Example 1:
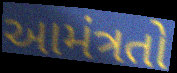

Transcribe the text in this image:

આમંત્રતો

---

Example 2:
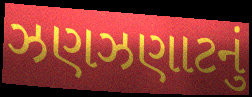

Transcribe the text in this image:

ઝણઝણાટનું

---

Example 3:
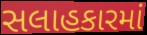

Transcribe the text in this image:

સલાહકારમાં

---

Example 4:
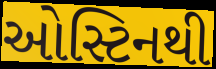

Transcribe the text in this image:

ઓસ્ટિનથી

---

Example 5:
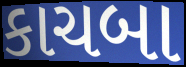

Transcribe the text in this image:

કાચબા